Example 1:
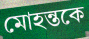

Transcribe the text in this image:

মোহন্তকে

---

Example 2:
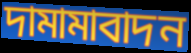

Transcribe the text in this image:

দামামাবাদন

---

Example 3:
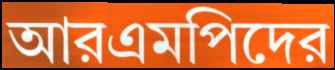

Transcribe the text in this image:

আরএমপিদের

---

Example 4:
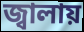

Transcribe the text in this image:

জ্বালায়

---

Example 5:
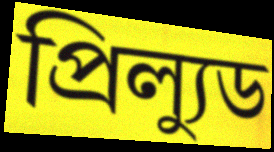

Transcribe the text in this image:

প্রিল্যুড